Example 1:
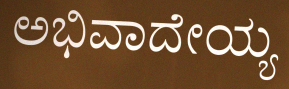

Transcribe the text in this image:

ಅಭಿವಾದೇಯ್ಯ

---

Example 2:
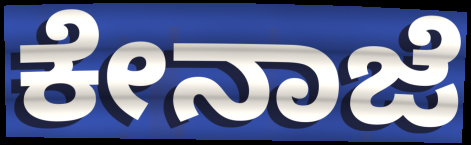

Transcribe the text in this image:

ಕೇನಾಜೆ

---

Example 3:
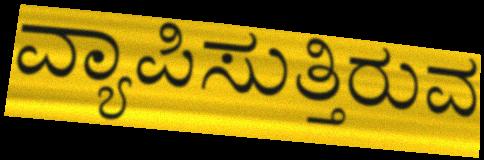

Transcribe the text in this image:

ವ್ಯಾಪಿಸುತ್ತಿರುವ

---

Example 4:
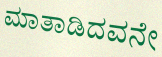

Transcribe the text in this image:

ಮಾತಾಡಿದವನೇ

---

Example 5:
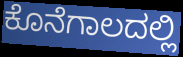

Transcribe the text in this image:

ಕೊನೆಗಾಲದಲ್ಲಿ